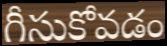
గీసుకోవడం